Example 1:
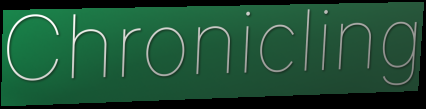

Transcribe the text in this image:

Chronicling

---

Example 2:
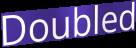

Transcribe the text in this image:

Doubled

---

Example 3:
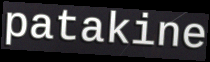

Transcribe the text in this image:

patakine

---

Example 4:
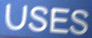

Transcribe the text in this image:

USES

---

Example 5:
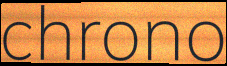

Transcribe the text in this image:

chrono